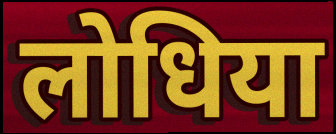
लोधिया